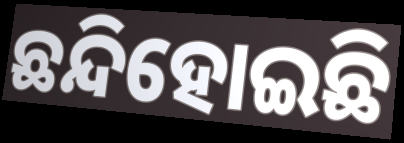
ଛନ୍ଦିହୋଇଛି